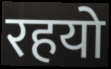
रहयो